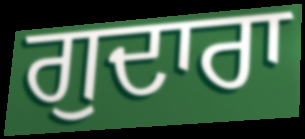
ਗੁਦਾਰਾ